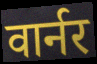
वार्नर